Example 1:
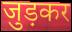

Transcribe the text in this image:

जुड़कर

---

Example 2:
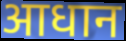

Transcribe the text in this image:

आधान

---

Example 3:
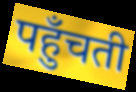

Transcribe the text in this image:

पहुँचती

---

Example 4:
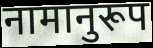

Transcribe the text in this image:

नामानुरूप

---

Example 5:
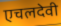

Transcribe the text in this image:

एचलदेवी